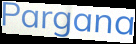
Pargana